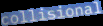
collisional